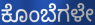
ಕೊಂಬೆಗಳೇ